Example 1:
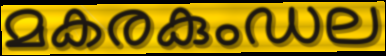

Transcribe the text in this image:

മകരകുംഡല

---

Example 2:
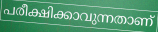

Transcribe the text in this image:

പരീക്ഷിക്കാവുന്നതാണ്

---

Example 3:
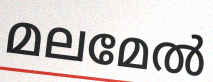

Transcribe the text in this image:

മലമേൽ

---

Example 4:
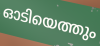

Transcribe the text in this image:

ഓടിയെത്തും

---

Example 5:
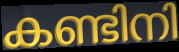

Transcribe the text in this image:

കണ്ടിനി